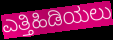
ಎತ್ತಿಹಿಡಿಯಲು